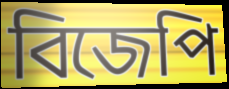
বিজেপি